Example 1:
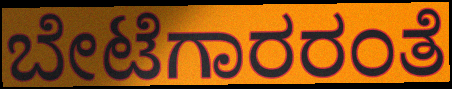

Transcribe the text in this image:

ಬೇಟೆಗಾರರಂತೆ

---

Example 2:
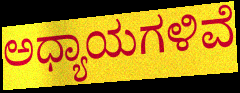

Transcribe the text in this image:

ಅಧ್ಯಾಯಗಳಿವೆ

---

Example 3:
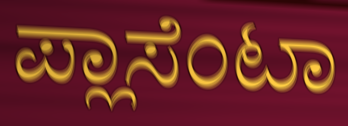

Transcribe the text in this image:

ಪ್ಲಾಸೆಂಟಾ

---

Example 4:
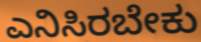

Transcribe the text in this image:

ಎನಿಸಿರಬೇಕು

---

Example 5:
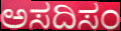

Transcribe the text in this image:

ಅಸದಿಸಂ